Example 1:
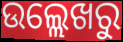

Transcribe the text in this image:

ଉଲ୍ଲେଖରୁ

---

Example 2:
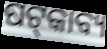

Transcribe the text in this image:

ଷଟ୍‌କାବ୍ୟ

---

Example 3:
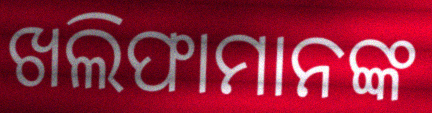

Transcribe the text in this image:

ଖଲିଫାମାନଙ୍କ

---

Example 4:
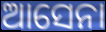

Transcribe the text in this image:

ଆସେନା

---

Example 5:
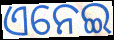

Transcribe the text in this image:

ଏନେଇ